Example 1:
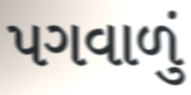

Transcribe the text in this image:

પગવાળું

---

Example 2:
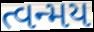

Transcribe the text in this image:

ત્વન્મય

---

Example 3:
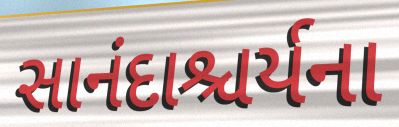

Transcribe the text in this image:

સાનંદાશ્ચર્યના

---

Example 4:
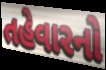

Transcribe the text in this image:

તહેવારનો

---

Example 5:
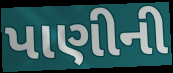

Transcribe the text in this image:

પાણીની